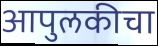
आपुलकीचा